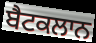
ਬੈਟਕਲਾਨ